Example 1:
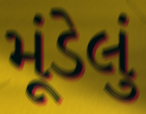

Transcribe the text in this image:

મૂંડેલું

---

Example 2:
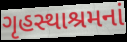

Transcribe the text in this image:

ગૃહસ્થાશ્રમનાં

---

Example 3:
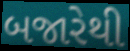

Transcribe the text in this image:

બજારેથી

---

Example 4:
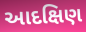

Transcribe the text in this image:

આદક્ષિણ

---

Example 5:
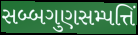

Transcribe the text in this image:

સબ્બગુણસમ્પત્તિં